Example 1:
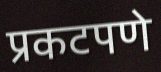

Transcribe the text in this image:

प्रकटपणे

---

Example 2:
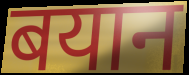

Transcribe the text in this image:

बयान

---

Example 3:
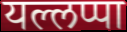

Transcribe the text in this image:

यल्लप्पा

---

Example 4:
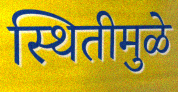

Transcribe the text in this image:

स्थितीमुळे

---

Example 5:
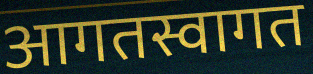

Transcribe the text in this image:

आगतस्वागत